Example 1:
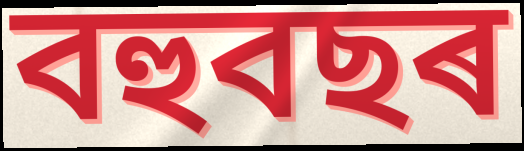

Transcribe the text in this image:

বহুবছৰ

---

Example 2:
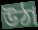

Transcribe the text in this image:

উঠা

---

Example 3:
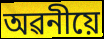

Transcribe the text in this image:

অৱনীয়ে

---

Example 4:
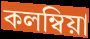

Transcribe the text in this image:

কলম্বিয়া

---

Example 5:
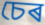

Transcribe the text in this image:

চেৰ